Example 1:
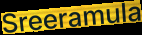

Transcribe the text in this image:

Sreeramula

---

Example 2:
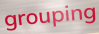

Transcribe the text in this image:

grouping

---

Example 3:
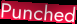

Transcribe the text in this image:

Punched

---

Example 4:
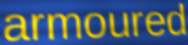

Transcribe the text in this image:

armoured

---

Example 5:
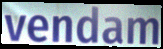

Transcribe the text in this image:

vendam